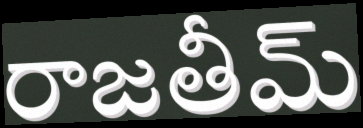
రాజతీమ్